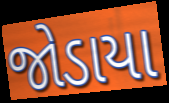
જોડાયા